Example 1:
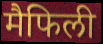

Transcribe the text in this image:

मैफिली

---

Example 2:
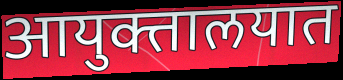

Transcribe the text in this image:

आयुक्तालयात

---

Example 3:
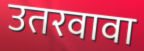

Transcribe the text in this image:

उतरवावा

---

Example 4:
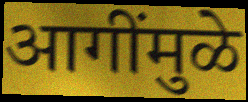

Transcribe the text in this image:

आगींमुळे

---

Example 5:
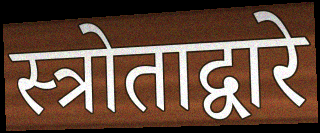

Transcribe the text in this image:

स्त्रोताद्वारे